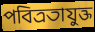
পবিত্রতাযুক্ত